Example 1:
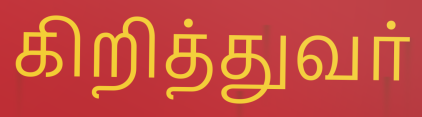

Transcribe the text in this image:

கிறித்துவர்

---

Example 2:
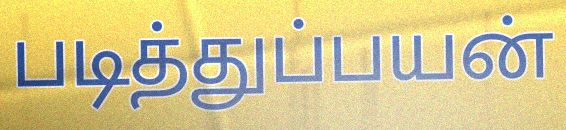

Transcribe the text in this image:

படித்துப்பயன்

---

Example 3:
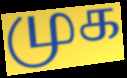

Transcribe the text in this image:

முக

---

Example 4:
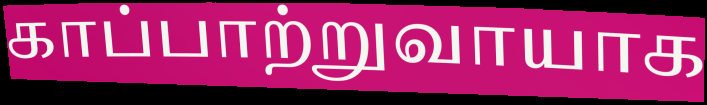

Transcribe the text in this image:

காப்பாற்றுவாயாக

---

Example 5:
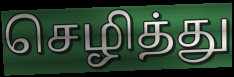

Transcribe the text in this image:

செழித்து